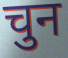
चुन